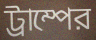
ট্রাম্পের